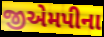
જીએમપીના